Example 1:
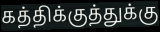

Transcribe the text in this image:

கத்திக்குத்துக்கு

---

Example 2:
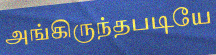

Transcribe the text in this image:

அங்கிருந்தபடியே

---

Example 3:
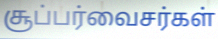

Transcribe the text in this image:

சூப்பர்வைசர்கள்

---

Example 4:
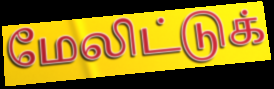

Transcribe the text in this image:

மேலிட்டுக்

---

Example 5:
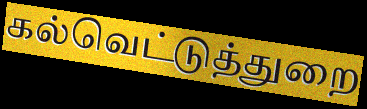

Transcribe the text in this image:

கல்வெட்டுத்துறை